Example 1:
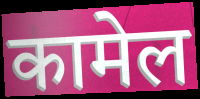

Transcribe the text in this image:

कामेल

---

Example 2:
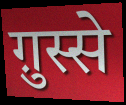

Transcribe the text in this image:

ग़ुस्से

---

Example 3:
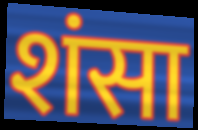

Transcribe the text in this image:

शंसा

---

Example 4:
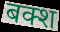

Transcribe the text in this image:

बक्श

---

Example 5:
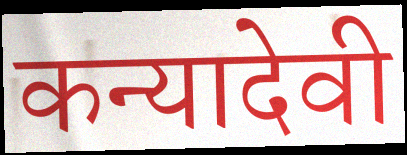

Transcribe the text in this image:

कन्यादेवी